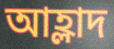
আহ্লাদ